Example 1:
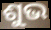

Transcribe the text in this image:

ଶୁଭ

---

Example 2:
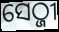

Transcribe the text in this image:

ସେଠ୍ଜୀ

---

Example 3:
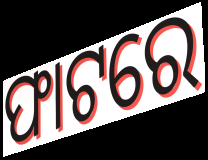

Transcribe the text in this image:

ଫାଟରେ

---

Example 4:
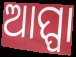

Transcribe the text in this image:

ଆପ୍ପା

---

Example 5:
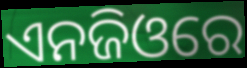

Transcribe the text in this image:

ଏନଜିଓରେ